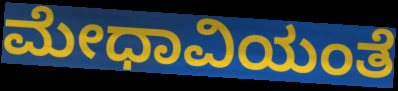
ಮೇಧಾವಿಯಂತೆ